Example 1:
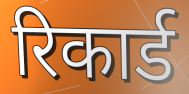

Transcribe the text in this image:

रिकार्ड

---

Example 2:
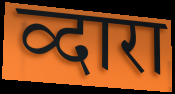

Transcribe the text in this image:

व्दारा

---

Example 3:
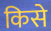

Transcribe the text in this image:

किसे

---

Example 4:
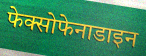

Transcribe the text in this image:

फेक्सोफेनाडाइन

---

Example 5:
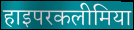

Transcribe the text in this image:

हाइपरकलीमिया